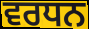
ਵਰਧਨ